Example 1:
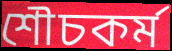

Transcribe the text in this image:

শৌচকর্ম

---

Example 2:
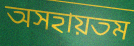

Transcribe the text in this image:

অসহায়তম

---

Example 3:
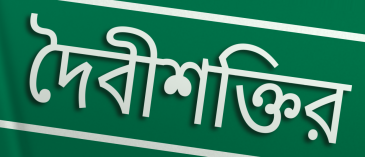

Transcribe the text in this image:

দৈবীশক্তির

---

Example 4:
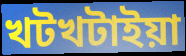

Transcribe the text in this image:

খটখটাইয়া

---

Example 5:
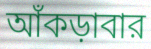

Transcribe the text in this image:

আঁকড়াবার